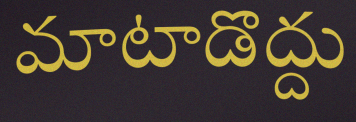
మాటాడొద్దు